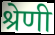
श्रेणी